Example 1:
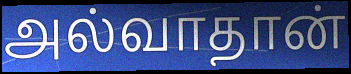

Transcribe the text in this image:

அல்வாதான்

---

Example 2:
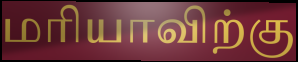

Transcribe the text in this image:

மரியாவிற்கு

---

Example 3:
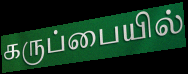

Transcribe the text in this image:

கருப்பையில்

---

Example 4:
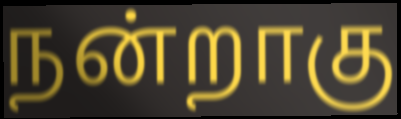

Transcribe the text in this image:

நன்றாகு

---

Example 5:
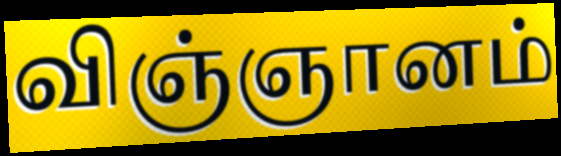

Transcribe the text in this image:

விஞ்ஞானம்